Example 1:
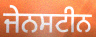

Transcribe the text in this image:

ਜੇਨਸਟੀਨ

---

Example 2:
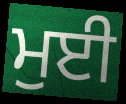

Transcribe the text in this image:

ਮੁਈ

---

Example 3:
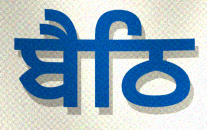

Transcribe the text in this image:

ਬੈਠਿ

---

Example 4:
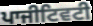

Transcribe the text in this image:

ਪਾਜੀਟਿਵਟੀ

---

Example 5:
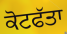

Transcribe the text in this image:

ਕੋਟਫੱਤਾ